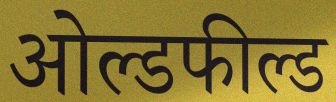
ओल्डफील्ड